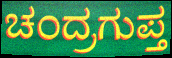
ಚಂದ್ರಗುಪ್ತ